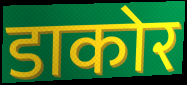
डाकोर